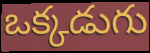
ఒక్కడుగు